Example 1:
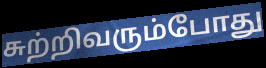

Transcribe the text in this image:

சுற்றிவரும்போது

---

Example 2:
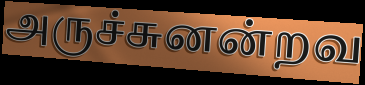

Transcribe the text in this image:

அருச்சுனன்றவ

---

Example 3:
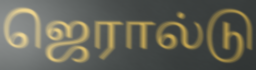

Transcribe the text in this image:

ஜெரால்டு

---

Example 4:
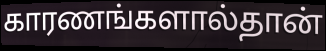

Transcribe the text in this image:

காரணங்களால்தான்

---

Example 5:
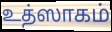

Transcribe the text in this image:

உத்ஸாகம்